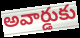
అవార్డుకు